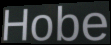
Hobe